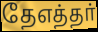
தேஎத்தர்